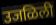
उजळिली